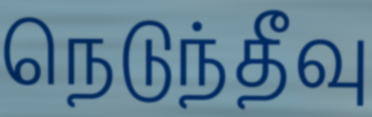
நெடுந்தீவு